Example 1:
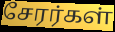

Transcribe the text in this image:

சேரர்கள்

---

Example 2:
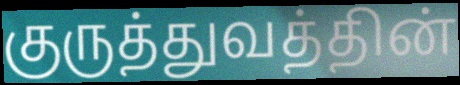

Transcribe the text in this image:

குருத்துவத்தின்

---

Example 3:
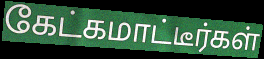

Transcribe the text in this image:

கேட்கமாட்டீர்கள்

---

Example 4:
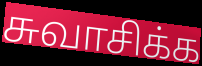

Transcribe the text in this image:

சுவாசிக்க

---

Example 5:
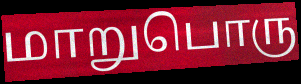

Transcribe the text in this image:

மாறுபொரு